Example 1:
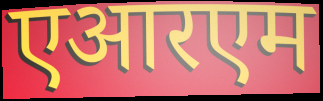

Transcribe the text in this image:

एआरएम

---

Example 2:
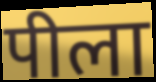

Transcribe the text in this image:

पीला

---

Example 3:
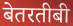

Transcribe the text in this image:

बेतरतीबी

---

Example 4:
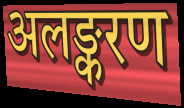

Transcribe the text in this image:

अलङ्करण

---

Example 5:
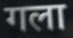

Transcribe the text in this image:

गला